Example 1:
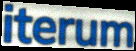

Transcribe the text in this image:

iterum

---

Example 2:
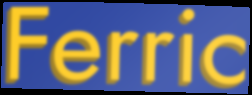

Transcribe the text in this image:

Ferric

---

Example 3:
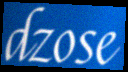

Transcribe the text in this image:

dzose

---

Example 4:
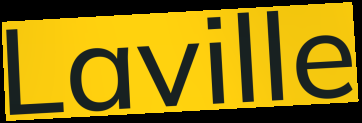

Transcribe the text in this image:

Laville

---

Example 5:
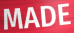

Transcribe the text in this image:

MADE